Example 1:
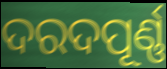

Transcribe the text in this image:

ଦରଦପୂର୍ଣ୍ଣ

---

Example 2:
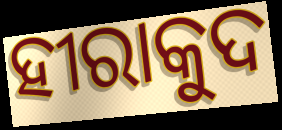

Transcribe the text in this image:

ହୀରାକୁଦ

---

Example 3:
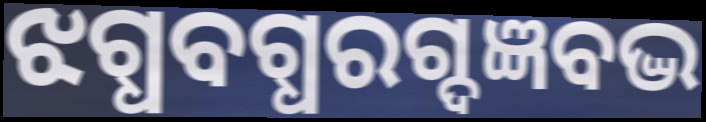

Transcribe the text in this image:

ଝଗ୍ଧବଗ୍ଧରଗ୍ଦଜ୍ଞବଦ୍ଭ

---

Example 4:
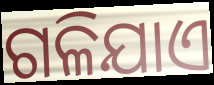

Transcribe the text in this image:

ଗଳିଯାଏ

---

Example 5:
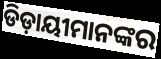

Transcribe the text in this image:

ଡିଡ଼ାୟୀମାନଙ୍କର